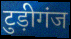
टुड़ीगंज